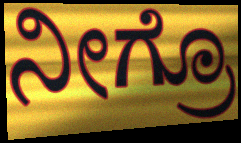
ನೀಗ್ರೊ